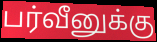
பர்வீனுக்கு